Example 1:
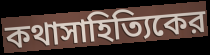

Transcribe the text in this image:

কথাসাহিত্যিকের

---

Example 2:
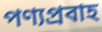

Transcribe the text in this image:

পণ্যপ্রবাহ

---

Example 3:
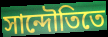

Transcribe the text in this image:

সান্দৌতিতে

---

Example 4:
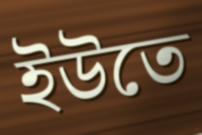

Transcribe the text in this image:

ইউতে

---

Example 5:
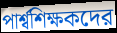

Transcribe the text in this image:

পার্শ্বশিক্ষকদের